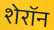
शेरॉन